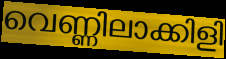
വെണ്ണിലാക്കിളി